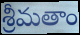
శ్రీమతాం